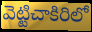
వెట్టిచాకిరిలో